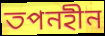
তপনহীন